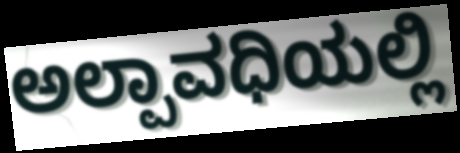
ಅಲ್ಪಾವಧಿಯಲ್ಲಿ